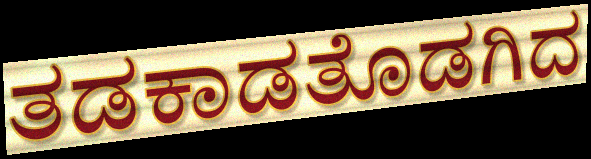
ತಡಕಾಡತೊಡಗಿದ